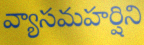
వ్యాసమహర్షిని